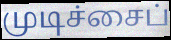
முடிச்சைப்